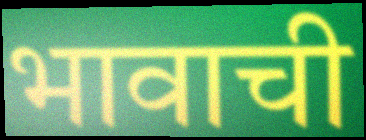
भावाची